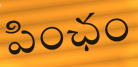
పింఛం